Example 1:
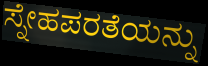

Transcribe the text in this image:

ಸ್ನೇಹಪರತೆಯನ್ನು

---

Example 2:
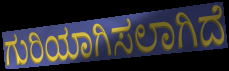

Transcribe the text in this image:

ಗುರಿಯಾಗಿಸಲಾಗಿದೆ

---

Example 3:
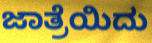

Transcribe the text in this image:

ಜಾತ್ರೆಯಿದು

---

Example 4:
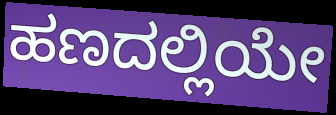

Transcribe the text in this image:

ಹಣದಲ್ಲಿಯೇ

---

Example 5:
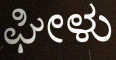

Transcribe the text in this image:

ಘೀಳು